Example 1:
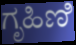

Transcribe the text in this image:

ಗೃಹಿಣಿ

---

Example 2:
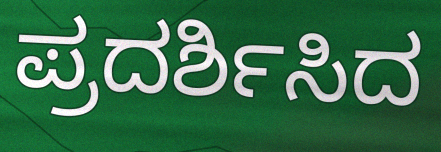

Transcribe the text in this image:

ಪ್ರದರ್ಶಿಸಿದ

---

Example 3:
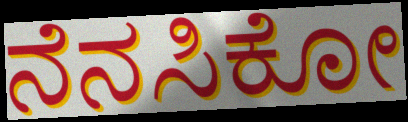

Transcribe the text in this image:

ನೆನಸಿಕೋ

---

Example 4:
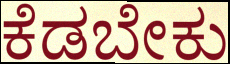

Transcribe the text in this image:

ಕೆಡಬೇಕು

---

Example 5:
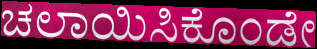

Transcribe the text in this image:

ಚಲಾಯಿಸಿಕೊಂಡೇ